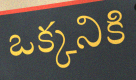
ఒక్కనికి